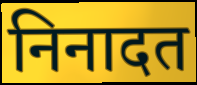
निनादत